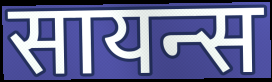
सायन्स